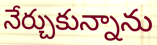
నేర్చుకున్నాను